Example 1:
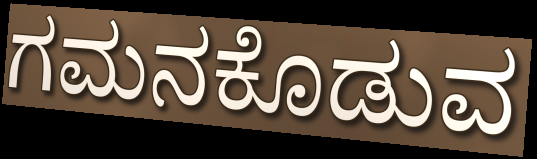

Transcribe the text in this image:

ಗಮನಕೊಡುವ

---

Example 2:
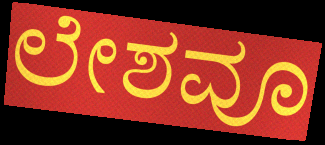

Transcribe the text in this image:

ಲೇಶವೂ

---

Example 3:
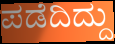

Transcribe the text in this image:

ಪಡೆದಿದ್ದು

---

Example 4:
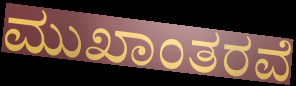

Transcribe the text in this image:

ಮುಖಾಂತರವೆ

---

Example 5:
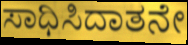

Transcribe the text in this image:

ಸಾಧಿಸಿದಾತನೇ